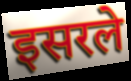
इसरले